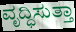
ವೃದ್ಧಿಸುತ್ತಾ